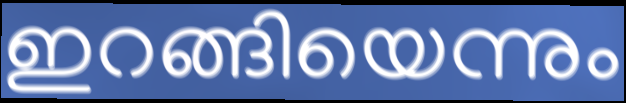
ഇറങ്ങിയെന്നും